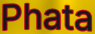
Phata